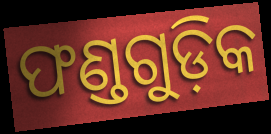
ଫଣ୍ଡଗୁଡ଼ିକ